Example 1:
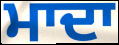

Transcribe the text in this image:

ਮਾਦਾ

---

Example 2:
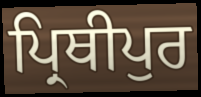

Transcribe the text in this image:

ਪ੍ਰਿਥੀਪੁਰ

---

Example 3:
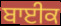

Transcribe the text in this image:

ਬਾਈਕ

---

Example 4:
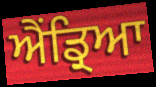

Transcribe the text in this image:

ਐਂਡ੍ਰਿਆ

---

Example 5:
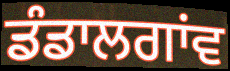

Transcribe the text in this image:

ਡੰਡਾਲਗਾਂਵ